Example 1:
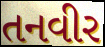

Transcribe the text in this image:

તનવીર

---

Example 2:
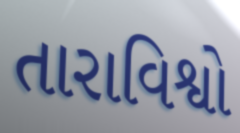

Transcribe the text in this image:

તારાવિશ્વો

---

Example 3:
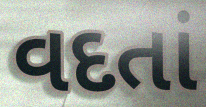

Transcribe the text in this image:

વદતાં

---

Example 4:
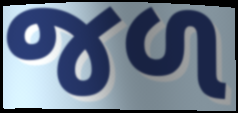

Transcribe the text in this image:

જળ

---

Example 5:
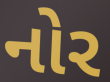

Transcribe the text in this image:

નોર